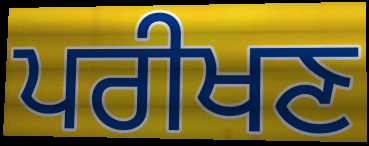
ਪਰੀਖਣ